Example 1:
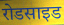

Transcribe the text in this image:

रोडसाइड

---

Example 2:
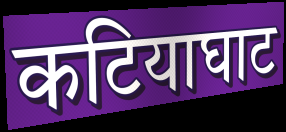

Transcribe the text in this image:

कटियाघाट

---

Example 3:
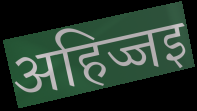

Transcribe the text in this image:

अहिज्जइ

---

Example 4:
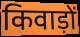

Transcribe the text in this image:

किवाड़ों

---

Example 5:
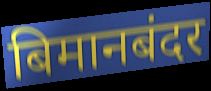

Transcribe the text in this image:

बिमानबंदर